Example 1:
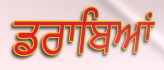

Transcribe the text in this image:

ਡਰਾਬਿਆਂ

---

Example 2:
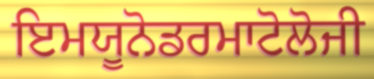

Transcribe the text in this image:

ਇਮਯੂਨੋਡਰਮਾਟੋਲੋਜੀ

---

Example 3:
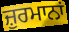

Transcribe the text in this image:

ਜ਼ੁਰਮਾਨਾਂ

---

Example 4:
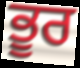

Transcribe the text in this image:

ਭੂਰ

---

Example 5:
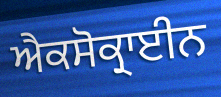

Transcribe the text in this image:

ਐਕਸੋਕ੍ਰਾਈਨ